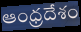
ఆంధ్రదేశం